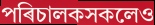
পৰিচালকসকলেও